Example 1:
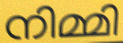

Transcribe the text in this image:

നിമ്മി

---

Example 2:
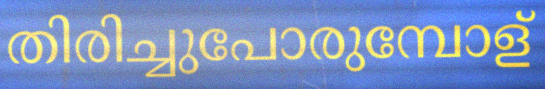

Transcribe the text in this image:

തിരിച്ചുപോരുമ്പോള്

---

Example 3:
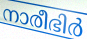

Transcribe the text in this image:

നാരീഭിർ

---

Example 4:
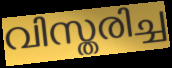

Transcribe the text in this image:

വിസ്തരിച്ച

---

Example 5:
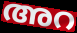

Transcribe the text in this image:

അറ